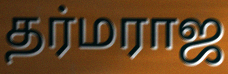
தர்மராஜ